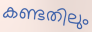
കണ്ടതിലും